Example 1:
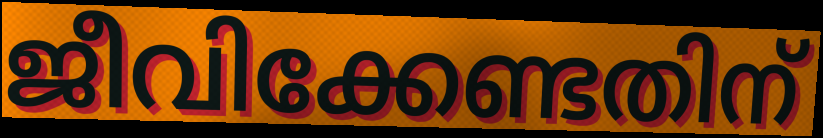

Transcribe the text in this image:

ജീവിക്കേണ്ടതിന്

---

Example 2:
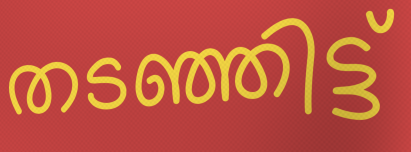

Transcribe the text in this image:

തടഞ്ഞിട്ട്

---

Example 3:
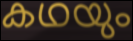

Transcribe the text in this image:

കഥയും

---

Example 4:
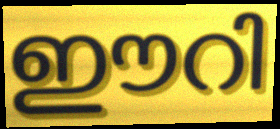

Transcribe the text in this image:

ഈറി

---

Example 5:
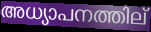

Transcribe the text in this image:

അധ്യാപനത്തില്